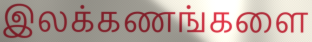
இலக்கணங்களை